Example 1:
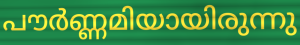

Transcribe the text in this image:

പൗർണ്ണമിയായിരുന്നു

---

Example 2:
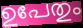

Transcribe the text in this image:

ഉപേതും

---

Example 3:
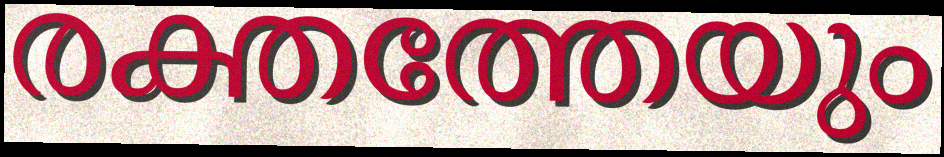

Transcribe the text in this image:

രക്തത്തേയും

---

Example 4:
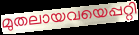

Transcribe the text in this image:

മുതലായവയെപ്പറ്റി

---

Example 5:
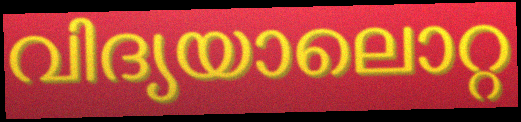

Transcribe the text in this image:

വിദ്യയാലൊറ്റ